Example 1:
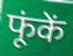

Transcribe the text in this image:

फूंकें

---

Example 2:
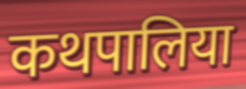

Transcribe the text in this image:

कथपालिया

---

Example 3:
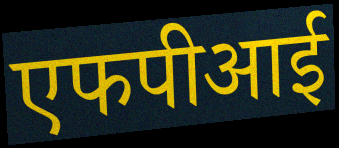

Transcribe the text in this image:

एफपीआई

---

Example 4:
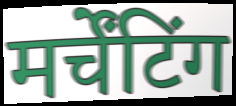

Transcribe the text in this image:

मर्चेंटिंग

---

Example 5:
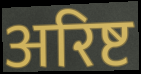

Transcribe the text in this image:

अरिष्ट